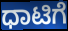
ಧಾಟಿಗೆ